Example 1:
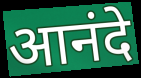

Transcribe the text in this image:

आनंदे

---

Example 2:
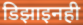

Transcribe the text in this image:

डिझाइनही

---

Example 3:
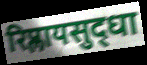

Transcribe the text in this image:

रिप्लायसुद्धा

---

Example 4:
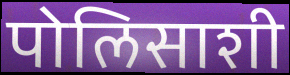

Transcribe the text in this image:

पोलिसाशी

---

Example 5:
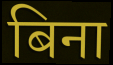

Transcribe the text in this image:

बिना